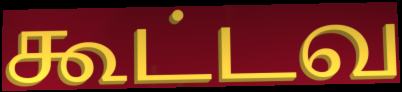
கூட்டவ